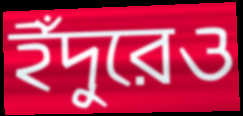
ইঁদুরেও